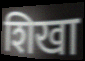
शिखा